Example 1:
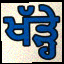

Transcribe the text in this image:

ਖੱੜ੍ਹੇ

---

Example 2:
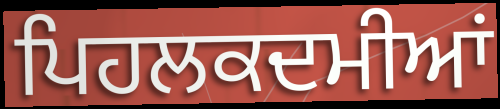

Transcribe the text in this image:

ਪਿਹਲਕਦਮੀਆਂ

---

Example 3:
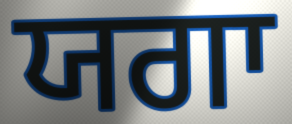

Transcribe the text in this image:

ਯਗਾ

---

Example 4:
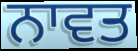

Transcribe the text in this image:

ਨਾਵਤ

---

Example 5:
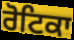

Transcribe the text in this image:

ਰੋਟਿਕਾ